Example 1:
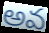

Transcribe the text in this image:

అవ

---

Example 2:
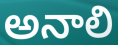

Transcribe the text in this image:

అనాలి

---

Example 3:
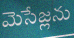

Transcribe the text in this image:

మెసేజ్లను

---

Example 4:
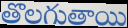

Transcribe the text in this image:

తొలగుతాయి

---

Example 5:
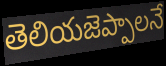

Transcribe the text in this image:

తెలియజెప్పాలనే